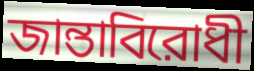
জান্তাবিরোধী